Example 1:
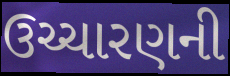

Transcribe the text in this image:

ઉચ્ચારણની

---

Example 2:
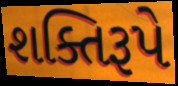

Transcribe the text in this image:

શક્તિરૂપે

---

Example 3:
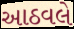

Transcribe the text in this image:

આઠવલે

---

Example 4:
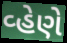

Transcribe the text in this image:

વ્હેણે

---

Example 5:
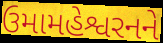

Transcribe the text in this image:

ઉમામહેશ્વરનને